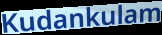
Kudankulam